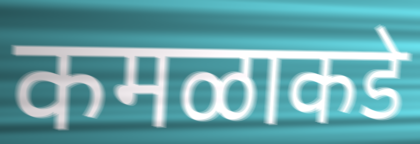
कमळाकडे